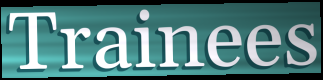
Trainees